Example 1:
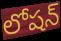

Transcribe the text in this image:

లోషన్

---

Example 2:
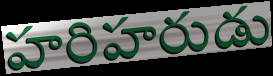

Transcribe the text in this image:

హరిహరుడు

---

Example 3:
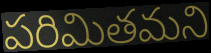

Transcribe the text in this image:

పరిమితమని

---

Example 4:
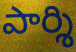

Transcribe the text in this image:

పార్శి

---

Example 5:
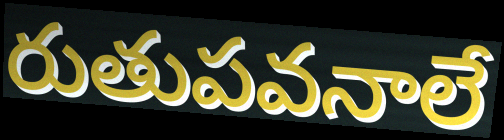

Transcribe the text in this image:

రుతుపవనాలే